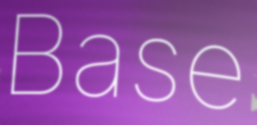
Base